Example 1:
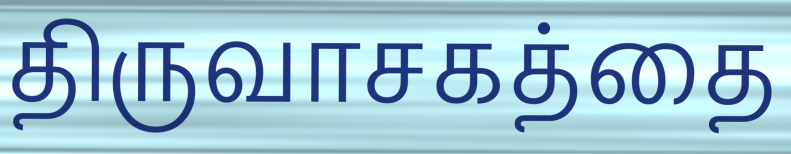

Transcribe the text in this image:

திருவாசகத்தை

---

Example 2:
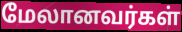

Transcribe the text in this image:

மேலானவர்கள்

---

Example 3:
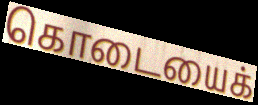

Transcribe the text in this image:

கொடையைக்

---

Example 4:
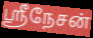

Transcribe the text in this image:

ஸ்ரீநேசன்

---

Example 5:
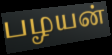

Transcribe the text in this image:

பழயன்